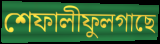
শেফালীফুলগাছে